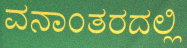
ವನಾಂತರದಲ್ಲಿ